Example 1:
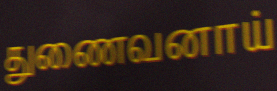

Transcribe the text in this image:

துணைவனாய்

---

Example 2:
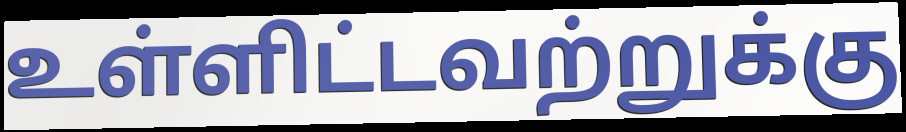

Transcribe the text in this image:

உள்ளிட்டவற்றுக்கு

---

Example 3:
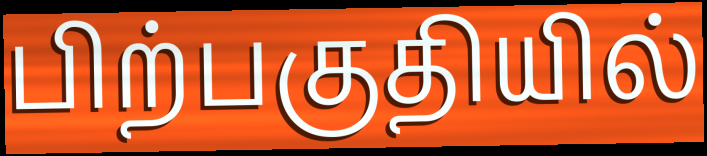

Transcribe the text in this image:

பிற்பகுதியில்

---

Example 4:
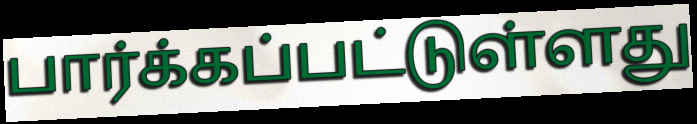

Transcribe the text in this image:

பார்க்கப்பட்டுள்ளது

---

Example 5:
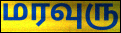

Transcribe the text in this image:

மரவுரு